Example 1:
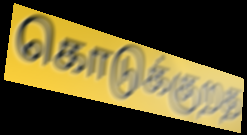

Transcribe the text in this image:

கொடுக்குறத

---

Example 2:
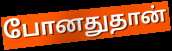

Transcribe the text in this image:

போனதுதான்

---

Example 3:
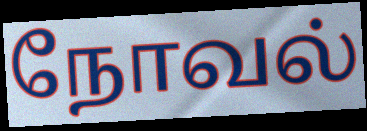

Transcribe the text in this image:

நோவல்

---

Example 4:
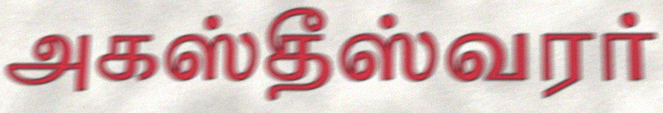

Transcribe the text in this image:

அகஸ்தீஸ்வரர்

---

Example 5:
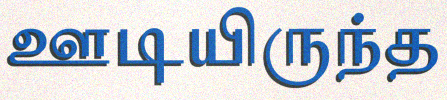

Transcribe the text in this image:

ஊடியிருந்த